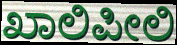
ಖಾಲಿಪೀಲಿ